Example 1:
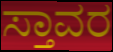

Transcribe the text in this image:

ಸ್ತಾವರ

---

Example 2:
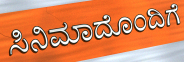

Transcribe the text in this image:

ಸಿನಿಮಾದೊಂದಿಗೆ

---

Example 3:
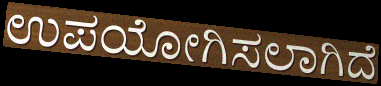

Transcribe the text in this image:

ಉಪಯೋಗಿಸಲಾಗಿದೆ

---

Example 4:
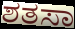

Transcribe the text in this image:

ಶತಸಾ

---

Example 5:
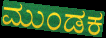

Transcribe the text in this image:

ಮುಂಡಕ